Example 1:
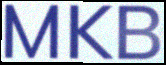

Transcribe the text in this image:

MKB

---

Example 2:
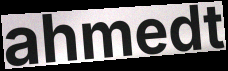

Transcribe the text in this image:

ahmedt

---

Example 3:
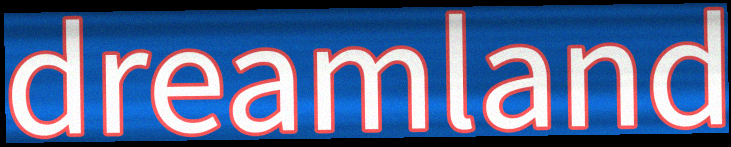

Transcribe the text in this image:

dreamland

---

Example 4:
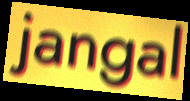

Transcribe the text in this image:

jangal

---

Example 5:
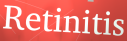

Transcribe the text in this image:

Retinitis